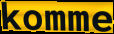
komme